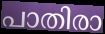
പാതിരാ